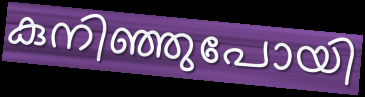
കുനിഞ്ഞുപോയി